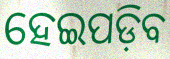
ହେଇପଡ଼ିବ